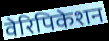
वेरिपिकेशन